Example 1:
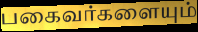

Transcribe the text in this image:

பகைவர்களையும்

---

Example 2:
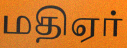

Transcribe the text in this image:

மதிஏர்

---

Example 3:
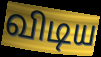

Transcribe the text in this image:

விடிய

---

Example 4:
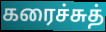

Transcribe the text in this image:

கரைச்சுத்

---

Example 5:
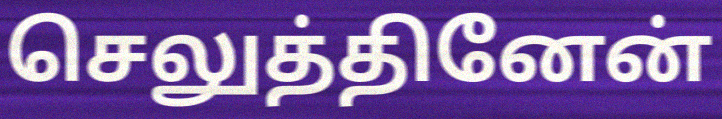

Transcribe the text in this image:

செலுத்தினேன்